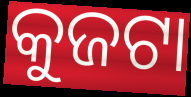
କୁଜଟା